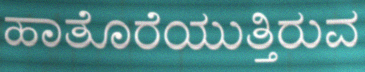
ಹಾತೊರೆಯುತ್ತಿರುವ